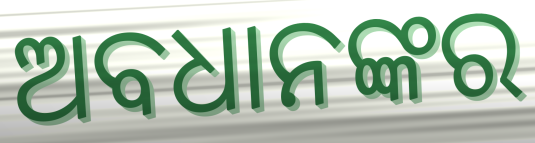
ଅବଧାନଙ୍କର